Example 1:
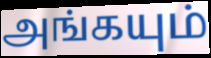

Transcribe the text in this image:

அங்கயும்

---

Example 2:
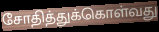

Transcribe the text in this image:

சோதித்துக்கொள்வது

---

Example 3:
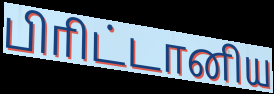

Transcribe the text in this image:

பிரிட்டானிய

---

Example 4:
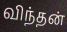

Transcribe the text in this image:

விந்தன்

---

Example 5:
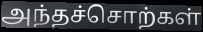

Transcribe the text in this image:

அந்தச்சொற்கள்